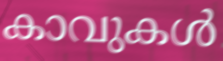
കാവുകൾ